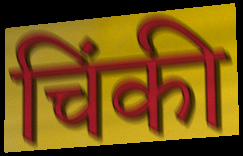
चिंकी